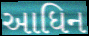
આધિન